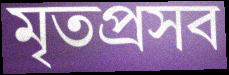
মৃতপ্রসব